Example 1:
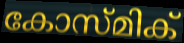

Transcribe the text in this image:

കോസ്മിക്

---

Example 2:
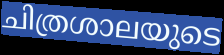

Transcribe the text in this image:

ചിത്രശാലയുടെ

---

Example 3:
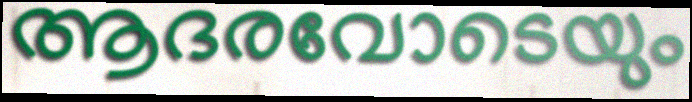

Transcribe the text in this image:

ആദരവോടെയും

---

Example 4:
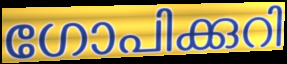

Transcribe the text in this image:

ഗോപിക്കുറി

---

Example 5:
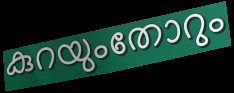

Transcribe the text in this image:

കുറയുംതോറും